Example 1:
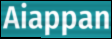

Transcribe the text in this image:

Aiappan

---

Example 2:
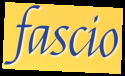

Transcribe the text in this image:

fascio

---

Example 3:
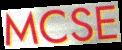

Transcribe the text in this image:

MCSE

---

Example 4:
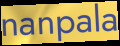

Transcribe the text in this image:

nanpala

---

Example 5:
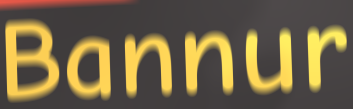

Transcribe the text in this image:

Bannur